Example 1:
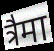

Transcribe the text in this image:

त्रैमा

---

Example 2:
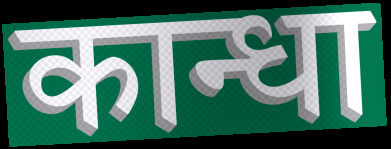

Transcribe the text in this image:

कान्धा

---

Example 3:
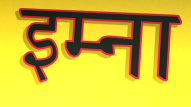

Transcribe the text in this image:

इम्ना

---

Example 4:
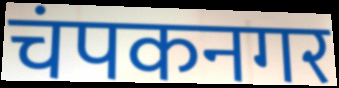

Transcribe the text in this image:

चंपकनगर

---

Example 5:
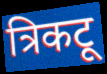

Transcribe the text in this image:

त्रिकटू